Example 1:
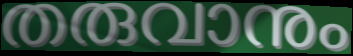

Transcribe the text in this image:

തരുവാനും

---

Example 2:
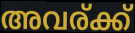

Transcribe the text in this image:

അവര്ക്ക്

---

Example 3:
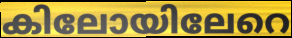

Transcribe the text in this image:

കിലോയിലേറെ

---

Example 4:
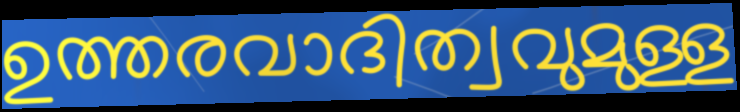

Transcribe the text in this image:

ഉത്തരവാദിത്വവുമുള്ള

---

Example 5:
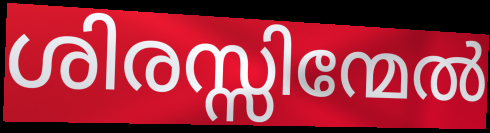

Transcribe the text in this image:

ശിരസ്സിന്മേൽ